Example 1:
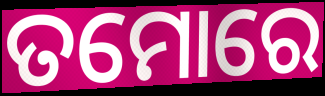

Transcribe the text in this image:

ତମୋରେ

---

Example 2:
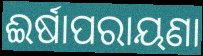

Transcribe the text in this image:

ଈର୍ଷାପରାୟଣା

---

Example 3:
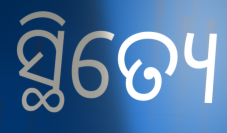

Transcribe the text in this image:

ସ୍ଥିତ୍ୟେ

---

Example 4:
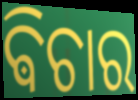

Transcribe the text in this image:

ଵିଚାର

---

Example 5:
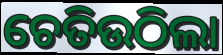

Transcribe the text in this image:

ଚେତିଉଠିଲା